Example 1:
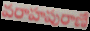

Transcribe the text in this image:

వరాహపురాణే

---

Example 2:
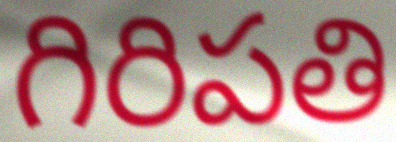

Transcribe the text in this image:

గిరిపతి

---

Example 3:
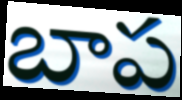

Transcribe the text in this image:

బాప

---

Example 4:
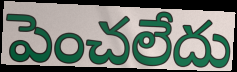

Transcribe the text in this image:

పెంచలేదు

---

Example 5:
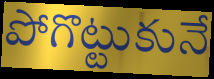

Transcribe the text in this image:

పోగొట్టుకునే